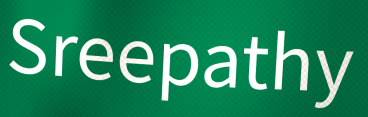
Sreepathy